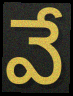
వే